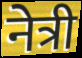
नेत्री